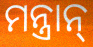
ମନ୍ତ୍ରାନ୍